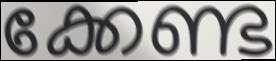
ക്കേണ്ട